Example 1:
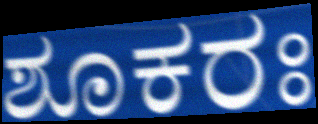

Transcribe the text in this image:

ಶೂಕರಃ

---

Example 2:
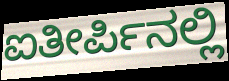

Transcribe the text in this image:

ಐತೀರ್ಪಿನಲ್ಲಿ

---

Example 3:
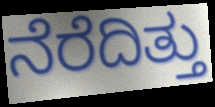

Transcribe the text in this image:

ನೆರೆದಿತ್ತು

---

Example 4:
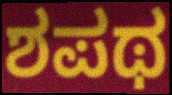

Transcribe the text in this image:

ಶಪಥ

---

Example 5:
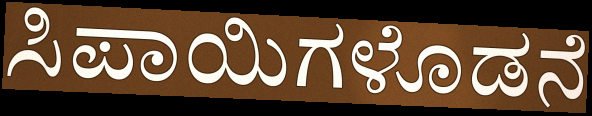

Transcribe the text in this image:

ಸಿಪಾಯಿಗಳೊಡನೆ